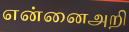
என்னைஅறி